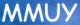
MMUY